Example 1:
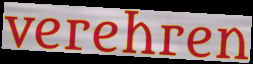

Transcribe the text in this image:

verehren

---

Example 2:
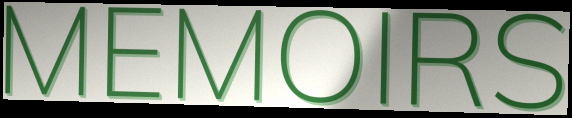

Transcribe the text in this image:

MEMOIRS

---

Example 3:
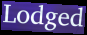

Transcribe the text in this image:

Lodged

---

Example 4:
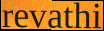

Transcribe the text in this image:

revathi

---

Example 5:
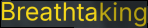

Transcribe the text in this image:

Breathtaking